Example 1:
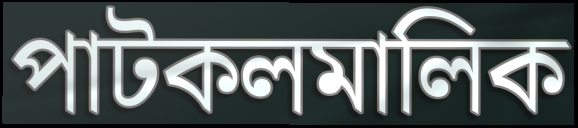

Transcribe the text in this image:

পাটকলমালিক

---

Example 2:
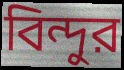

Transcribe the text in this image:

বিন্দুর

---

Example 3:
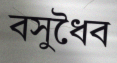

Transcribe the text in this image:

বসুধৈব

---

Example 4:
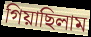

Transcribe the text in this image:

গিয়াছিলাম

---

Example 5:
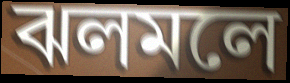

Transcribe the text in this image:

ঝলমলে